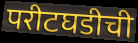
परीटघडीची